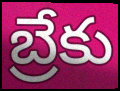
బ్రేకు